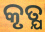
କୃତ୍ଯ